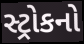
સ્ટ્રોકનો